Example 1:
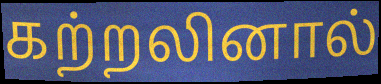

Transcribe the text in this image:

கற்றலினால்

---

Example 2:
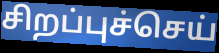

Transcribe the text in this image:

சிறப்புச்செய்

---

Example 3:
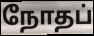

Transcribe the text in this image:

நோதப்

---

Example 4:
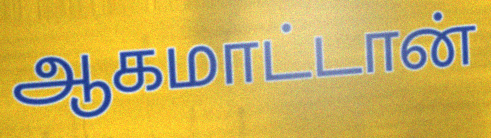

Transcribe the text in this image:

ஆகமாட்டான்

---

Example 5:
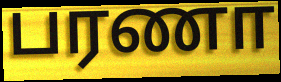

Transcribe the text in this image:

பரணா